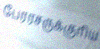
பேரரசருக்குரிய